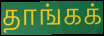
தாங்கக்